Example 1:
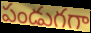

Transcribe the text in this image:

పండుగగా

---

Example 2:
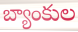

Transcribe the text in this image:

బ్యాంకుల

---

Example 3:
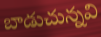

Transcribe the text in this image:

బాడుచున్నవి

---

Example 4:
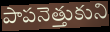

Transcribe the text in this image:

పాపనెత్తుకుని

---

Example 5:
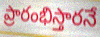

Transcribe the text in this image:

ప్రారంభిస్తారనే